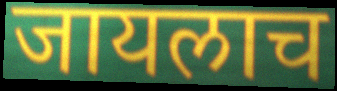
जायलाच